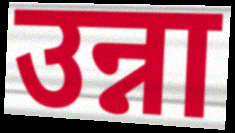
उन्ना